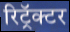
रिट्रॅक्टर